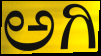
ಅಗಿ